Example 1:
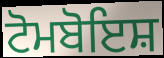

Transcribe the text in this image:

ਟੋਮਬੋਇਸ਼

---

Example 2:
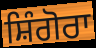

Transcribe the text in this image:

ਸ਼ਿੰਗੋਰਾ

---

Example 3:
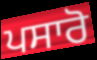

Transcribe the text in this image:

ਪਸਾਰੋ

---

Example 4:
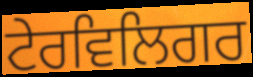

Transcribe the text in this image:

ਟੇਰਵਿਲਿਗਰ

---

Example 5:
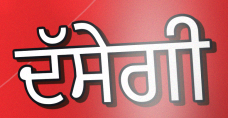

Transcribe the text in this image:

ਦੱਸੇਗੀ